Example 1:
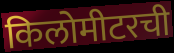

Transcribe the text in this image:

किलोमीटरची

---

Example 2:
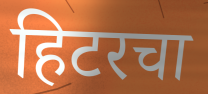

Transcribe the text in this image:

हिटरचा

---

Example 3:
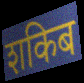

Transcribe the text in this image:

शकिब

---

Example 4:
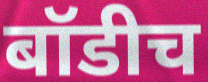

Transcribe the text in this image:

बॉडीच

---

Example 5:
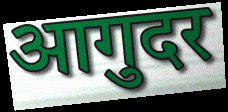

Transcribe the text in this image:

आगुदर